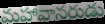
మహావానరుడు